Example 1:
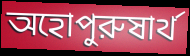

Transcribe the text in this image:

অহোপুৰুষাৰ্থ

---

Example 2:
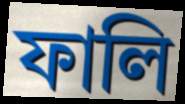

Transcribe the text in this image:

ফালি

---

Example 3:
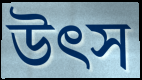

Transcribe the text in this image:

উৎস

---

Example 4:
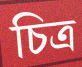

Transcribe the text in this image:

চিত্ৰ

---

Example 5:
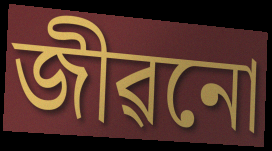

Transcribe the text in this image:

জীৱনো